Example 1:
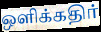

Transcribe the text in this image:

ஒளிக்கதிர்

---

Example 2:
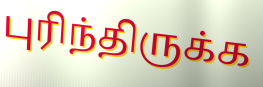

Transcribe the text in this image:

புரிந்திருக்க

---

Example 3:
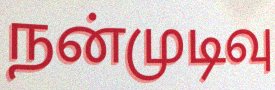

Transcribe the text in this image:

நன்முடிவு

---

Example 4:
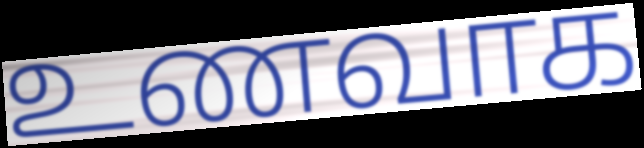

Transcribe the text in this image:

உணவாக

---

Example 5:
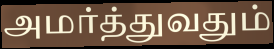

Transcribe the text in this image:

அமர்த்துவதும்